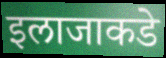
इलाजाकडे